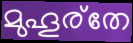
മുഹൂര്തേ